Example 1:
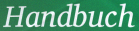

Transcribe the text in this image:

Handbuch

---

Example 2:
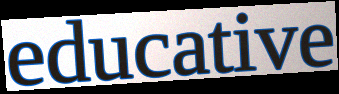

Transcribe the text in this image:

educative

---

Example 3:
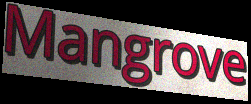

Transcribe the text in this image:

Mangrove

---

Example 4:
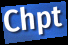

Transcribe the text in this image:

Chpt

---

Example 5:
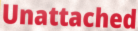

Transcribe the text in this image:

Unattached